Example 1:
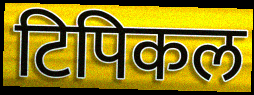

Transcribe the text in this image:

टिपिकल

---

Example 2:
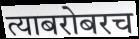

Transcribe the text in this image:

त्याबरोबरच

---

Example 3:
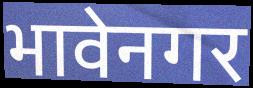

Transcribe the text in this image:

भावेनगर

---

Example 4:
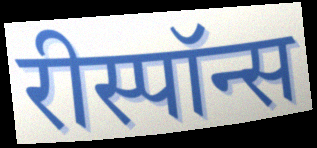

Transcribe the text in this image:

रीस्पॉन्स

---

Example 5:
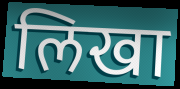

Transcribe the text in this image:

लिखा